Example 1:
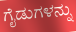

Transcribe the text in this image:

ಗೈಡುಗಳನ್ನು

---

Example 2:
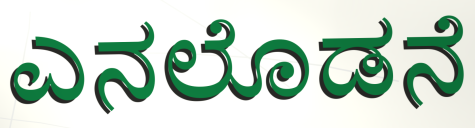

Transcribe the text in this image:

ಎನಲೊಡನೆ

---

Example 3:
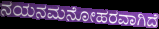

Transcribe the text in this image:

ನಯನಮನೋಹರವಾಗಿದೆ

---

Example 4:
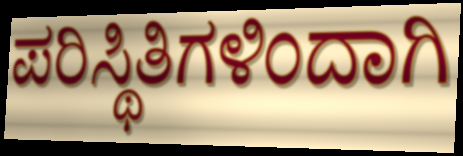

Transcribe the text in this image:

ಪರಿಸ್ಥಿತಿಗಳಿಂದಾಗಿ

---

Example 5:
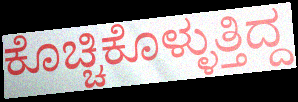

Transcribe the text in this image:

ಕೊಚ್ಚಿಕೊಳ್ಳುತ್ತಿದ್ದ